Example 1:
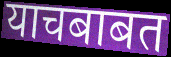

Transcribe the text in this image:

याचबाबत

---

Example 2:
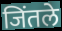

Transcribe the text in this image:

जिंतले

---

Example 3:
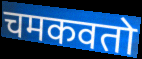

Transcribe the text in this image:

चमकवतो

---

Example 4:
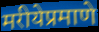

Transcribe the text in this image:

मरीयेप्रमाणे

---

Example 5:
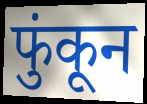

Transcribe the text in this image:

फुंकून